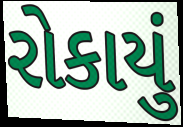
રોકાયું